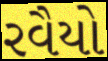
રવૈયો